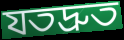
যতদ্রুত